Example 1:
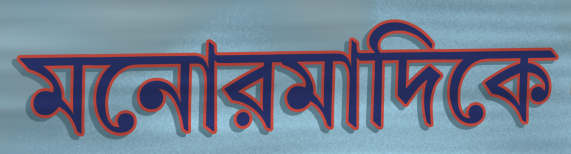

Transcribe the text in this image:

মনোরমাদিকে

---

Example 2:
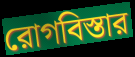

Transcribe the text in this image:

রোগবিস্তার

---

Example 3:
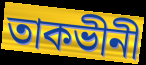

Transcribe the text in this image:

তাকভীনী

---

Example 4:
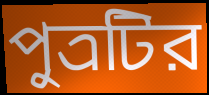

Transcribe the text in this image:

পুত্রটির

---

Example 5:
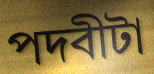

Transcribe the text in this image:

পদবীটা